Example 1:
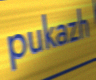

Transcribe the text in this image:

pukazh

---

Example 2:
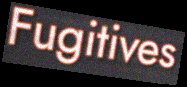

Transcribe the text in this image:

Fugitives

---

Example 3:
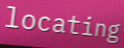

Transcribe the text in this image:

locating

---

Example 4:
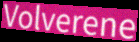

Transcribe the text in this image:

Volverene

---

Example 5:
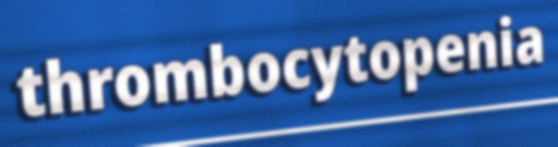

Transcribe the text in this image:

thrombocytopenia